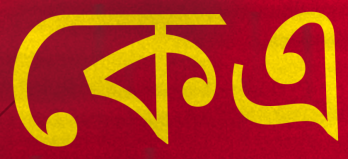
কেএ